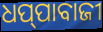
ଧପ୍‌ପାବାଜୀ